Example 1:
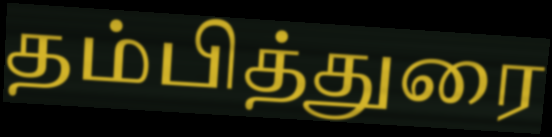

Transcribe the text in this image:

தம்பித்துரை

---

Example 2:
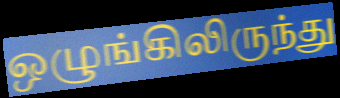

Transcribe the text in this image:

ஒழுங்கிலிருந்து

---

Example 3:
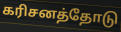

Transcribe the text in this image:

கரிசனத்தோடு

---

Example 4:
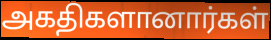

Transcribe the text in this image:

அகதிகளானார்கள்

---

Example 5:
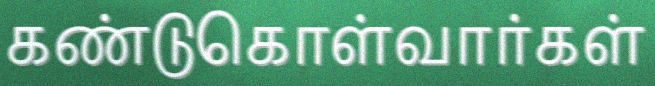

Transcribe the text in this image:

கண்டுகொள்வார்கள்